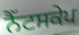
ਨੈੱਟਸਕੇਪ